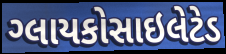
ગ્લાયકોસાઇલેટેડ